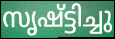
സൃഷ്ട്ടിച്ചു